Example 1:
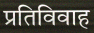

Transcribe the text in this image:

प्रतिविवाह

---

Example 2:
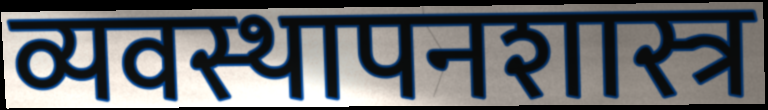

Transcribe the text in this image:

व्यवस्थापनशास्त्र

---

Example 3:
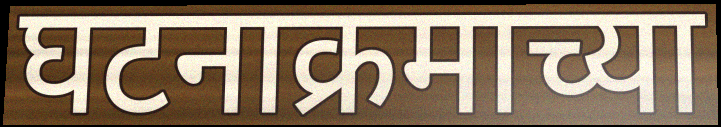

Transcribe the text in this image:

घटनाक्रमाच्या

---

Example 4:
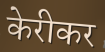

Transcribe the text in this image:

केरीकर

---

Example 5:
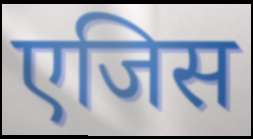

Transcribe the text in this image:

एजिस